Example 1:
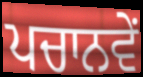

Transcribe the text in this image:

ਪਚਾਨਵੇਂ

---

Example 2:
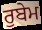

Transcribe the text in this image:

ਰੁਬੇਮ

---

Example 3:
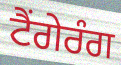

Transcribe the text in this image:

ਟੈਂਗੇਰੰਗ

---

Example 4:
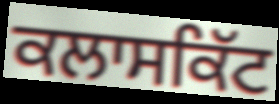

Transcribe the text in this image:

ਕਲਾਸਕਿੱਟ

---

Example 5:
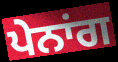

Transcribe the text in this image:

ਪੇਨਾਂਗ